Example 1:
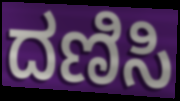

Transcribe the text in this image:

ದಣಿಸಿ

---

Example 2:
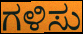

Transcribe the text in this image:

ಗಳಿಸು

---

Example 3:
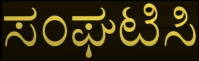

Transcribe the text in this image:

ಸಂಘಟಿಸಿ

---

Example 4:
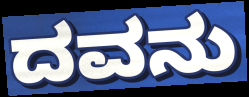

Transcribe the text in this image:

ದವನು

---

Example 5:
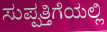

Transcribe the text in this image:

ಸುಪ್ಪತ್ತಿಗೆಯಲ್ಲಿ